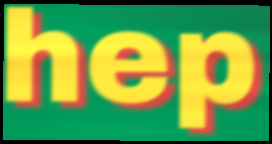
hep